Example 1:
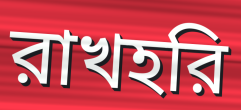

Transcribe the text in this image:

রাখহরি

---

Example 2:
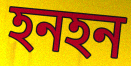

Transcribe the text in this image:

হনহন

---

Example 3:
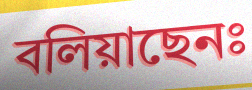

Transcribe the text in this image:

বলিয়াছেনঃ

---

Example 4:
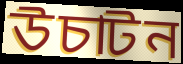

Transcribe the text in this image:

উচাটন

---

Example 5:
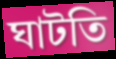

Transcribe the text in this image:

ঘাটতি